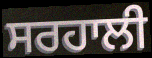
ਸਰਹਾਲੀ